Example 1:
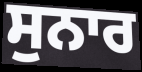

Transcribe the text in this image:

ਸੁਨਾਰ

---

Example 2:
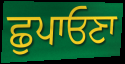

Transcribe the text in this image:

ਛੁਪਾਓਣਾ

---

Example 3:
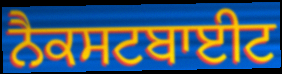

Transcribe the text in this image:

ਨੈਕਸਟਬਾਈਟ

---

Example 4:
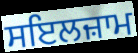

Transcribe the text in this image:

ਸਇਲਜ਼ਾਮ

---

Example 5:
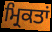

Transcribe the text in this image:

ਮ੍ਰਿਕਤਾਂ